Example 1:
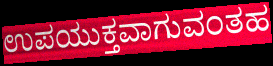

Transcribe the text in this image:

ಉಪಯುಕ್ತವಾಗುವಂತಹ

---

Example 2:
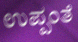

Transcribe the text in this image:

ಉಪ್ಪಂತೆ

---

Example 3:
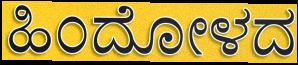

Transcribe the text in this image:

ಹಿಂದೋಳದ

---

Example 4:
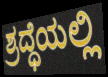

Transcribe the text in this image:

ಶ್ರದ್ಧೆಯಲ್ಲಿ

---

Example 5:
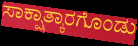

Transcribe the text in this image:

ಸಾಕ್ಷಾತ್ಕಾರಗೊಂಡು